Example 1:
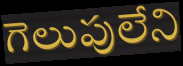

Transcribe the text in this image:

గెలుపులేని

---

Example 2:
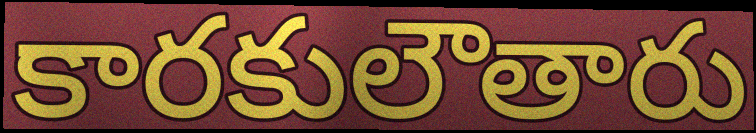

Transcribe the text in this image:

కారకులౌతారు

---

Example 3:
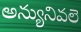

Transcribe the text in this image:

అన్యునివలె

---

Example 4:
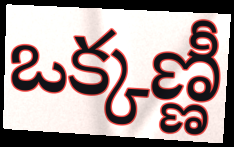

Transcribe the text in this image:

ఒక్కణ్ణీ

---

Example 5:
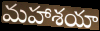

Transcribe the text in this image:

మహాశయా